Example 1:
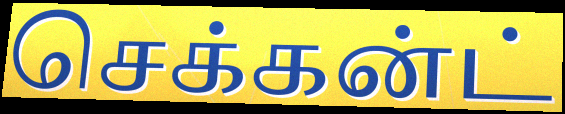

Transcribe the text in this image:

செக்கன்ட்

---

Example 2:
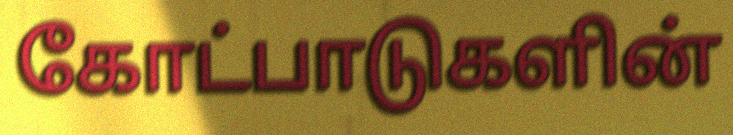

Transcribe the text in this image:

கோட்பாடுகளின்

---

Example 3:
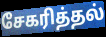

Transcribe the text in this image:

சேகரித்தல்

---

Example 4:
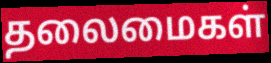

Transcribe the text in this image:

தலைமைகள்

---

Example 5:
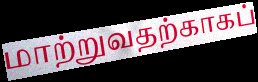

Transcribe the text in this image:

மாற்றுவதற்காகப்